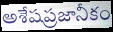
అశేషప్రజానీకం